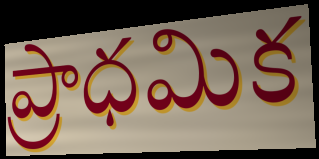
ప్రాధమిక